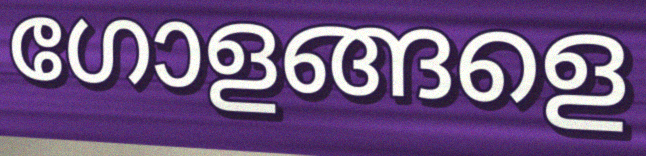
ഗോളങ്ങളെ